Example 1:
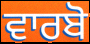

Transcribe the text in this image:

ਵਾਰਬੋ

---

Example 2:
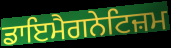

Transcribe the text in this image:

ਡਾਇਮੈਗਨੇਟਿਜ਼ਮ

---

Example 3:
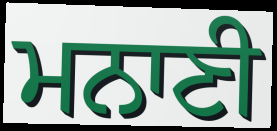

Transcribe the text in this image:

ਮਨਾਣੀ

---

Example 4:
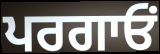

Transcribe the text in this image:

ਪਰਗਾਓਂ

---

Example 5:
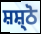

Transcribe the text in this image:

ਸ਼ਸ਼੍ਠੋ